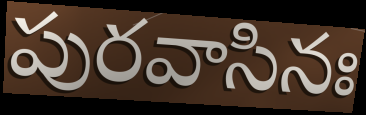
పురవాసినః